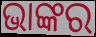
ଭାଙ୍କର